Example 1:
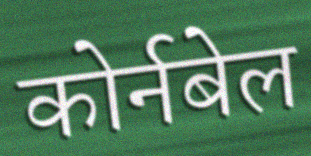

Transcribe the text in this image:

कोर्नबेल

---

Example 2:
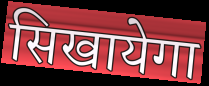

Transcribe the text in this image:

सिखायेगा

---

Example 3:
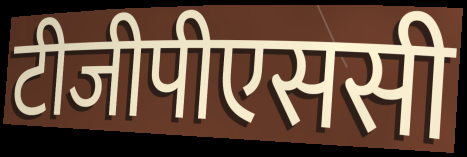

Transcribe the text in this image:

टीजीपीएससी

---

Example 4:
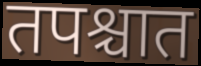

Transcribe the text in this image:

तपश्चात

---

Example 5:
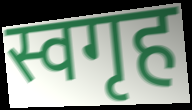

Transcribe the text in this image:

स्वगृह